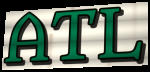
ATL